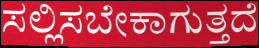
ಸಲ್ಲಿಸಬೇಕಾಗುತ್ತದೆ